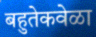
बहुतेकवेळा